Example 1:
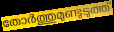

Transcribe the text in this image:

തോർത്തുമുണ്ടുടുത്ത്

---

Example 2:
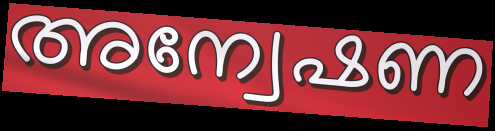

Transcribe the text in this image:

അന്വേഷണ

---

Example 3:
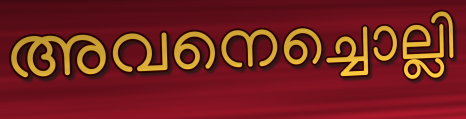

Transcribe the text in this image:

അവനെച്ചൊല്ലി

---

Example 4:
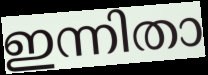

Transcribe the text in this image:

ഇന്നിതാ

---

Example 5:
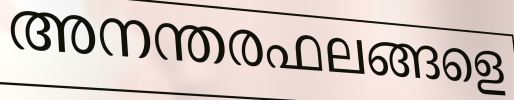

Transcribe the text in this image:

അനന്തരഫലങ്ങളെ